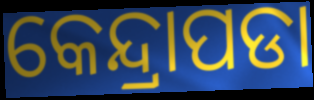
କେନ୍ଦ୍ରାପଡା